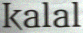
kalal